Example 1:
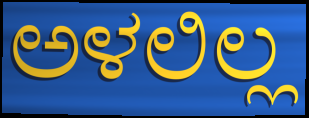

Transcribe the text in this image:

ಅಳಲಿಲ್ಲ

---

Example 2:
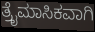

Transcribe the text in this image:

ತ್ರೈಮಾಸಿಕವಾಗಿ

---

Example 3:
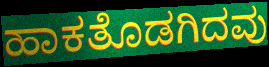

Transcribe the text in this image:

ಹಾಕತೊಡಗಿದವು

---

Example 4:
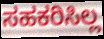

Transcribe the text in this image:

ಸಹಕರಿಸಿಲ್ಲ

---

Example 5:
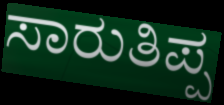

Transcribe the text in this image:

ಸಾರುತಿಪ್ಪ